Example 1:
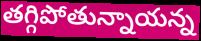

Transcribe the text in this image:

తగ్గిపోతున్నాయన్న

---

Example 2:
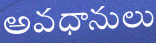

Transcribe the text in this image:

అవధానులు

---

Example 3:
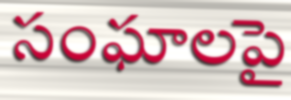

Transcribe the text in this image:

సంఘాలపై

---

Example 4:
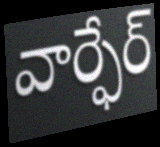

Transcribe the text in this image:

వార్ఫేర్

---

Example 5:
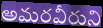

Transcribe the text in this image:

అమరవీరుని